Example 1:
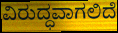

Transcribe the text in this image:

ವಿರುದ್ಧವಾಗಲಿದೆ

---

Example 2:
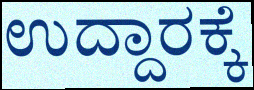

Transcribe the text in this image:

ಉದ್ದಾರಕ್ಕೆ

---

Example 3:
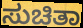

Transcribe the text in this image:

ಸುಚಿತಾ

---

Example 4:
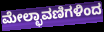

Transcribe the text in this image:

ಮೇಲ್ಛಾವಣಿಗಳಿಂದ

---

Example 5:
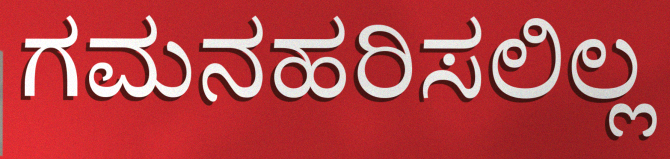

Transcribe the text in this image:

ಗಮನಹರಿಸಲಿಲ್ಲ